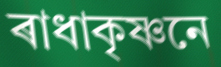
ৰাধাকৃষ্ণনে